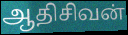
ஆதிசிவன்